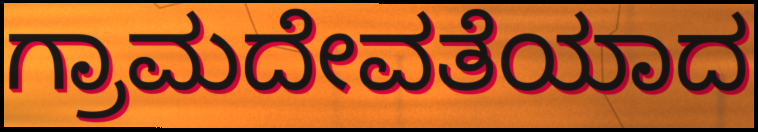
ಗ್ರಾಮದೇವತೆಯಾದ